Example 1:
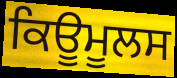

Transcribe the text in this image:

ਕਿਊਮੂਲਸ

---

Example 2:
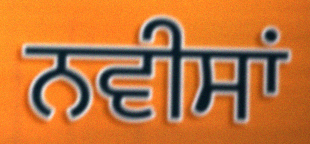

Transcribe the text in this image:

ਨਵੀਸਾਂ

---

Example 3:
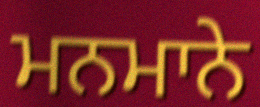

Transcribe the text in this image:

ਮਨਮਾਨੇ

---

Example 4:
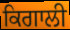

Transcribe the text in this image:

ਕਿਗਾਲੀ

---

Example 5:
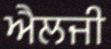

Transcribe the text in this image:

ਐਲਜੀ